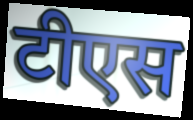
टीएस